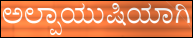
ಅಲ್ಪಾಯುಷಿಯಾಗಿ